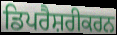
ਡਿਪਰੈਸ਼ਰੀਕਰਨ